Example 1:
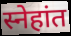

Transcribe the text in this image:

स्नेहांत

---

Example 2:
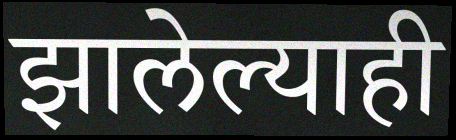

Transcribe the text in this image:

झालेल्याही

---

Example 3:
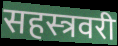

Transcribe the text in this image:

सहस्त्रवरी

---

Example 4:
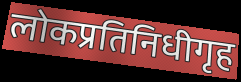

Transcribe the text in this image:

लोकप्रतिनिधीगृह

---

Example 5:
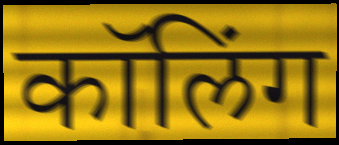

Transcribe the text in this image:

कॉलिंग